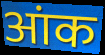
आंक